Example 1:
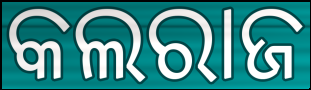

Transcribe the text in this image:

କଲରାଜ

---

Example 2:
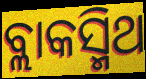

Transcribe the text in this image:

ବ୍ଲାକସ୍ମିଥ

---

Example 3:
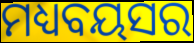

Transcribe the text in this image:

ମଧ୍ୟବୟସର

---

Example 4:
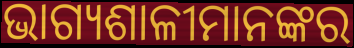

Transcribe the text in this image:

ଭାଗ୍ୟଶାଳୀମାନଙ୍କର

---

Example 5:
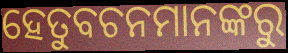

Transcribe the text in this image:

ହେତୁବଚନମାନଙ୍କରୁ